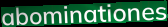
abominationes